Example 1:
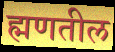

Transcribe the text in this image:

ह्मणतील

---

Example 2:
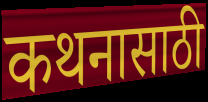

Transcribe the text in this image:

कथनासाठी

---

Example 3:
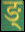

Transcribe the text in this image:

ङ्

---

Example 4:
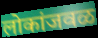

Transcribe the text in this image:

लोकांजवळ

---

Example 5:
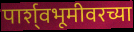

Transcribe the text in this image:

पार्श्वभूमीवरच्या